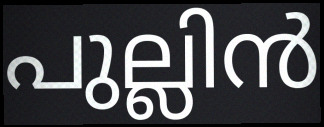
പുല്ലിൻ